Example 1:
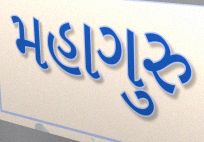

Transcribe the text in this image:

મહાગુરુ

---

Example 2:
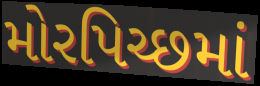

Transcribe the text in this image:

મોરપિચ્છમાં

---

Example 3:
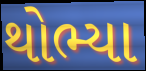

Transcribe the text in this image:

થોભ્યા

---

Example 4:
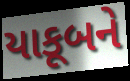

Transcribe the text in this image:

યાકૂબને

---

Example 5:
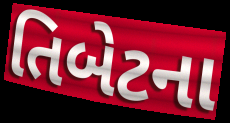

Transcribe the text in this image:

તિબેટના